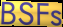
BSFs